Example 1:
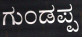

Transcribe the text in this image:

ಗುಂಡಪ್ಪ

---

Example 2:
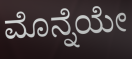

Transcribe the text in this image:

ಮೊನ್ನೆಯೇ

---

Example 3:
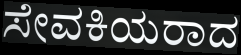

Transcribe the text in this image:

ಸೇವಕಿಯರಾದ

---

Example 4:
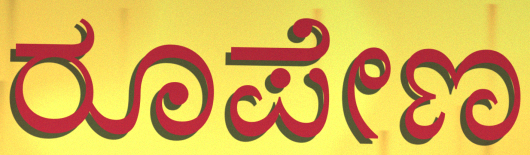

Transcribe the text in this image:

ರೂಪೇಣ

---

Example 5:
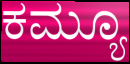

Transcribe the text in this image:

ಕಮ್ಯೂ